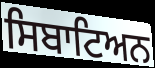
ਸਿਬਾਟਿਅਨ